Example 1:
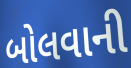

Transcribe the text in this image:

બોલવાની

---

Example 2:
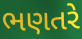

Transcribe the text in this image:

ભણતરે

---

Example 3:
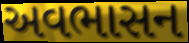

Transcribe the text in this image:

અવભાસન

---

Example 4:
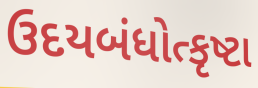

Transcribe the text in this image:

ઉદયબંધોત્કૃષ્ટા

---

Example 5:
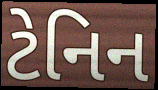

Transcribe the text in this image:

ટેનિન